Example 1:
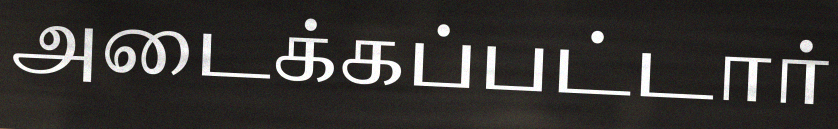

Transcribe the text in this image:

அடைக்கப்பட்டார்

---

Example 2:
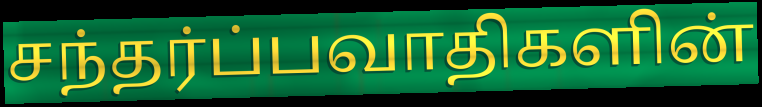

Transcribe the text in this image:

சந்தர்ப்பவாதிகளின்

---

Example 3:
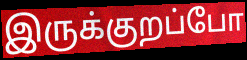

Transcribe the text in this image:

இருக்குறப்போ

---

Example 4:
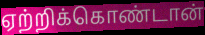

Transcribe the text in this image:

ஏற்றிக்கொண்டான்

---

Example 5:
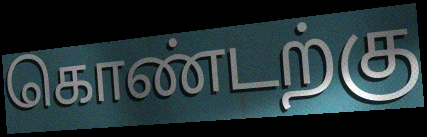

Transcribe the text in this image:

கொண்டற்கு